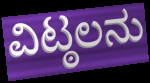
ವಿಟ್ಠಲನು